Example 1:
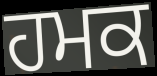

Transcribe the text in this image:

ਹਮਕ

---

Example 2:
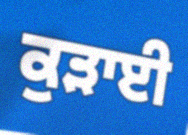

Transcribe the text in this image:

ਕੁੜਾਈ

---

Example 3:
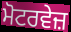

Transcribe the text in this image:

ਮੋਟਰਵੇਜ਼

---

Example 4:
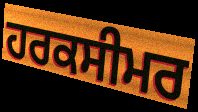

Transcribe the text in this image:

ਹਰਕਸੀਮਰ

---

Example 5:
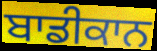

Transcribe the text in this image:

ਬਾਡੀਕਾਨ